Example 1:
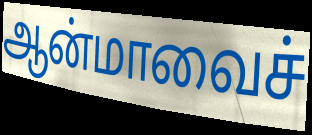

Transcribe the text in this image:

ஆன்மாவைச்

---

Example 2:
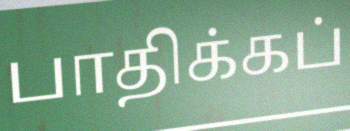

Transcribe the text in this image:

பாதிக்கப்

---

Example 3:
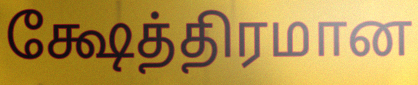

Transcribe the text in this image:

க்ஷேத்திரமான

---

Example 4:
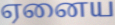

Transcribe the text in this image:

ஏனைய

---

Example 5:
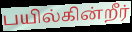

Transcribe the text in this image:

பயில்கின்றீர்